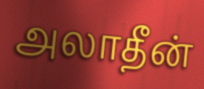
அலாதீன்